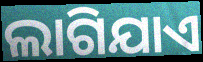
ଲାଗିଯାଏ